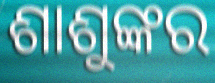
ଶାଶୁଙ୍କର